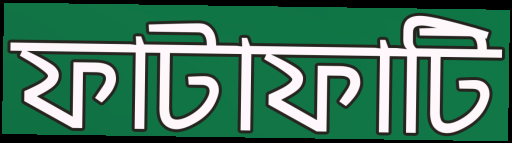
ফাটাফাটি